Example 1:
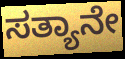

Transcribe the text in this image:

ಸತ್ಯಾನೇ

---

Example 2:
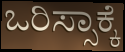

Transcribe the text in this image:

ಒರಿಸ್ಸಾಕ್ಕೆ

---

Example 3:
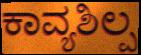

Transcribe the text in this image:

ಕಾವ್ಯಶಿಲ್ಪ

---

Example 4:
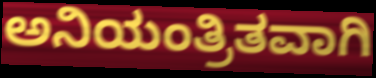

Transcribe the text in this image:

ಅನಿಯಂತ್ರಿತವಾಗಿ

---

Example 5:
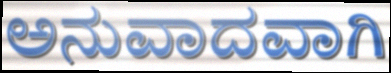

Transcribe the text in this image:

ಅನುವಾದವಾಗಿ